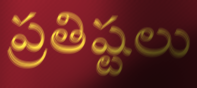
ప్రతిష్టలు